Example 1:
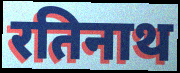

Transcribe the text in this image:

रतिनाथ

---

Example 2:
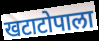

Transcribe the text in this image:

खटाटोपाला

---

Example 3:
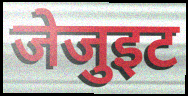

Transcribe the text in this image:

जेजुइट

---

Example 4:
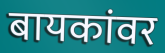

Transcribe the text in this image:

बायकांवर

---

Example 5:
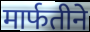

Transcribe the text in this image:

मार्फतीने